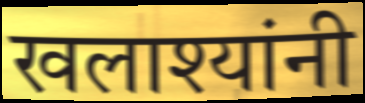
खलाश्यांनी